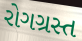
રોગગ્રસ્ત